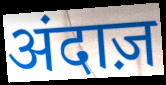
अंदाज़